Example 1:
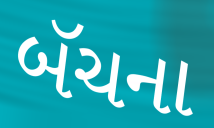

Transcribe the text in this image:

બૅચના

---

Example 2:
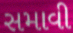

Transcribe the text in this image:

સમાવી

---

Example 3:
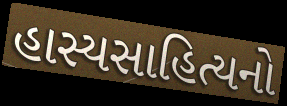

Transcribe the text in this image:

હાસ્યસાહિત્યનો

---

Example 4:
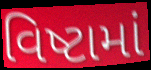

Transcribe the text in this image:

વિષ્ટામાં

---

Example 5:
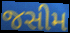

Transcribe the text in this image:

જસીમ